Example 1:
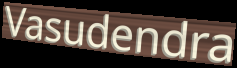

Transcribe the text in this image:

Vasudendra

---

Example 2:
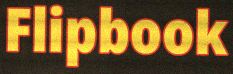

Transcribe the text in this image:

Flipbook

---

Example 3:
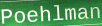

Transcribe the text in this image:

Poehlman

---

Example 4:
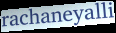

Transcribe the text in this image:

rachaneyalli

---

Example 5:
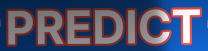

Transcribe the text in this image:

PREDICT